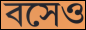
বসেও